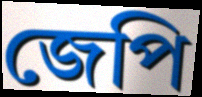
জেপি